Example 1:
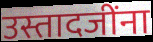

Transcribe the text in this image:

उस्तादजींना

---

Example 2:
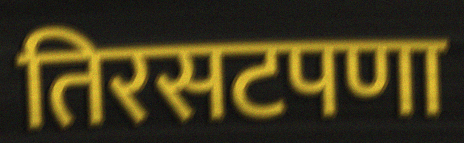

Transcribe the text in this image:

तिरसटपणा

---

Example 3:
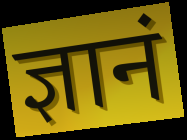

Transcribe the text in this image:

ज्ञानं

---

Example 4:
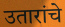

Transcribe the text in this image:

उतारांचे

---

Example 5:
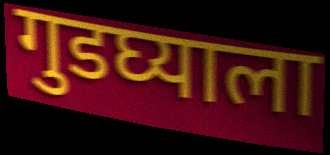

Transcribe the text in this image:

गुडघ्याला